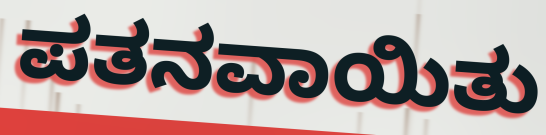
ಪತನವಾಯಿತು